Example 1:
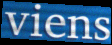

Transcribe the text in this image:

viens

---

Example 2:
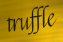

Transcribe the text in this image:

truffle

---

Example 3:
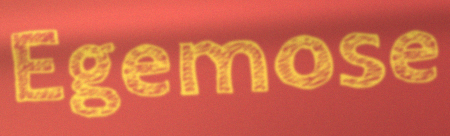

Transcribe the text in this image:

Egemose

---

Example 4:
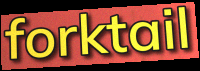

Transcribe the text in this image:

forktail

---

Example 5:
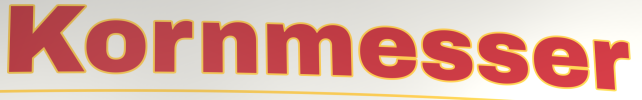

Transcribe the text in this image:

Kornmesser